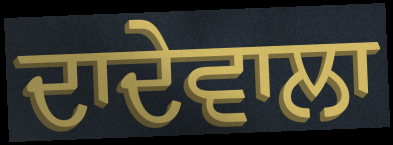
ਦਾਦੇਵਾਲਾ